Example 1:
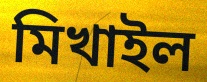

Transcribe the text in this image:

মিখাইল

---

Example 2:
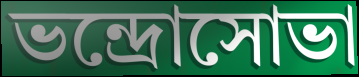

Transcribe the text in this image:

ভন্দ্রোসোভা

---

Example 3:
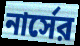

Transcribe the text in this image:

নার্সের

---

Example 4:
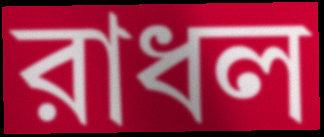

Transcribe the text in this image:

রাধল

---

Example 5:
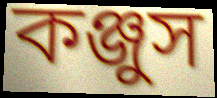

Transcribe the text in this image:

কঞ্জুস